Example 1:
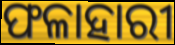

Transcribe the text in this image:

ଫଳାହାରୀ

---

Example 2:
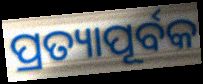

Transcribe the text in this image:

ପ୍ରତ୍ୟାପୂର୍ବକ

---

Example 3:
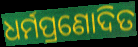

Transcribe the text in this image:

ଧର୍ମପ୍ରଣୋଦିତ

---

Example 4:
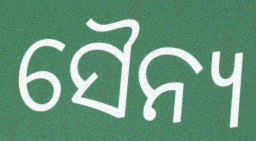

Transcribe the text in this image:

ସୈନ୍ୟ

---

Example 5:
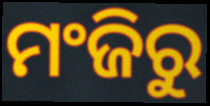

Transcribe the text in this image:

ମଂଜିରୁ